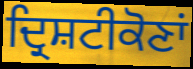
ਦ੍ਰਿਸ਼ਟੀਕੋਣਾਂ